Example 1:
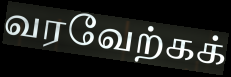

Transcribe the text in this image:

வரவேற்கக்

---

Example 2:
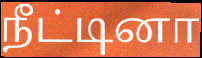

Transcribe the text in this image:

நீட்டினா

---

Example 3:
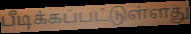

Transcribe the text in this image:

பீடிக்கப்பட்டுள்ளது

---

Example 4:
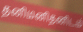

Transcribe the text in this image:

தனிமனிதனிடம்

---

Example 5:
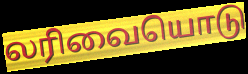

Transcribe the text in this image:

லரிவையொடு